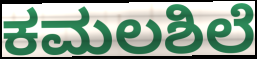
ಕಮಲಶಿಲೆ